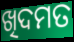
ଖିଦମତ